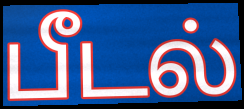
பீடல்